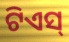
ଟିଏସ୍